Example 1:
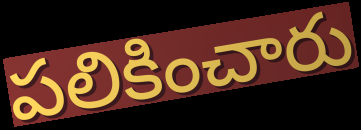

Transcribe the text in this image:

పలికించారు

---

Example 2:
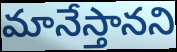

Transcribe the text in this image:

మానేస్తానని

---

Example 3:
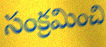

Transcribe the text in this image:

సంక్రమించి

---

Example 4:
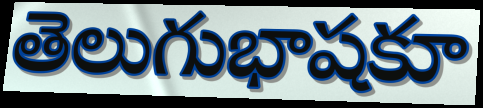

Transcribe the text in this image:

తెలుగుభాషకూ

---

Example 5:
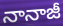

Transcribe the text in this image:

నానాజీ